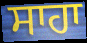
ਸਾਹਾ